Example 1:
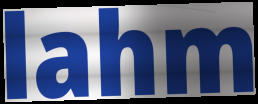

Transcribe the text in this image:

lahm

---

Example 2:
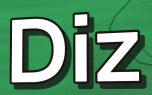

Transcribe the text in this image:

Diz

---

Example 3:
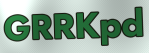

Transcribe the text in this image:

GRRKpd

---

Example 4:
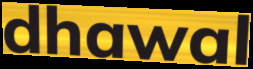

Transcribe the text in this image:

dhawal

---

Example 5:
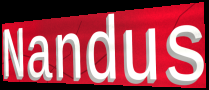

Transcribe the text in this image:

Nandus